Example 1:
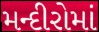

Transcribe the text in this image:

મન્દીરોમાં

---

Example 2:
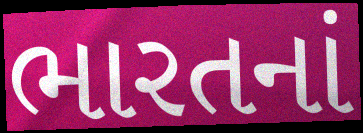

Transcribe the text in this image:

ભારતનાં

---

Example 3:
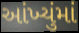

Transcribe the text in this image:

આંખ્યુંમાં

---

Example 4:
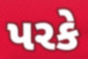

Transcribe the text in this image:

પરકે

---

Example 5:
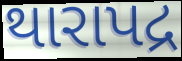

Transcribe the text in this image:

થારાપદ્ર